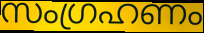
സംഗ്രഹണം